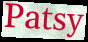
Patsy